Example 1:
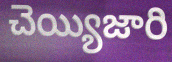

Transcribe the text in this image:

చెయ్యిజారి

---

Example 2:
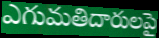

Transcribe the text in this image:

ఎగుమతిదారులపై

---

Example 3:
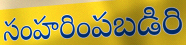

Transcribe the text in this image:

సంహరింపబడిరి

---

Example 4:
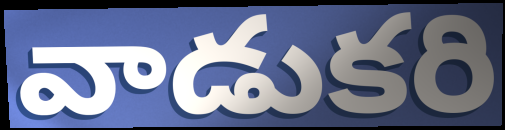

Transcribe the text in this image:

వాడుకరి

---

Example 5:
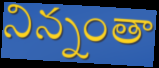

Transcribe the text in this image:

నిన్నంతా